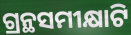
ଗ୍ରନ୍ଥସମୀକ୍ଷାଟି